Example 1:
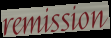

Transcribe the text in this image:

remission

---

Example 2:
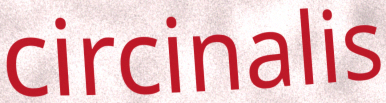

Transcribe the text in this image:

circinalis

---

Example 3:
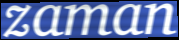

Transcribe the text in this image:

zaman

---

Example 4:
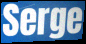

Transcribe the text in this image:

Serge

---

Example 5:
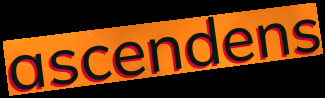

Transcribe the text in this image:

ascendens